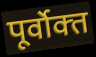
पूर्वोक्‍त